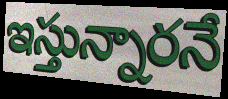
ఇస్తున్నారనే